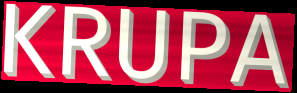
KRUPA